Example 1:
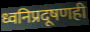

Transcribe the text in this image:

ध्वनिप्रदूषणही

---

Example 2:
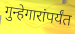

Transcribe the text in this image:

गुन्हेगारांपर्यंत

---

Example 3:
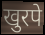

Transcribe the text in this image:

खुरपे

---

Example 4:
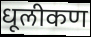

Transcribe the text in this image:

धूलीकण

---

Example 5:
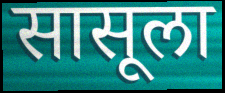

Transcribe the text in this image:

सासूला